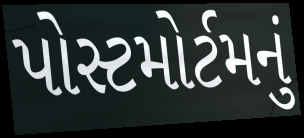
પોસ્ટમોર્ટમનું